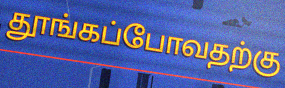
தூங்கப்போவதற்கு